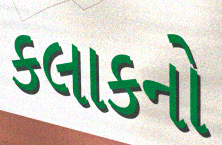
કલાકનો